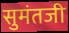
सुमंतजी